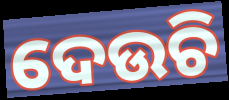
ଦେଉଚି